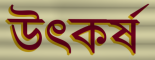
উৎকৰ্ষ